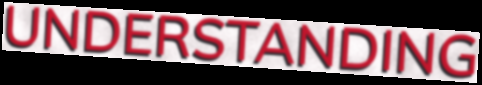
UNDERSTANDING